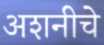
अशनीचे